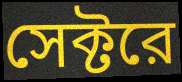
সেক্টরে